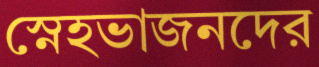
স্নেহভাজনদের